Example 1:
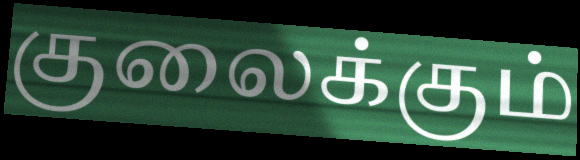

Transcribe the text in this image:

குலைக்கும்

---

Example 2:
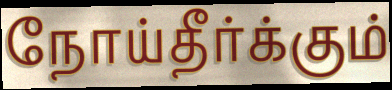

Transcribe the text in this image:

நோய்தீர்க்கும்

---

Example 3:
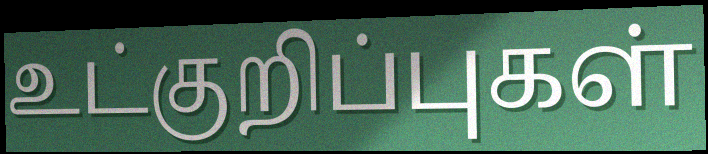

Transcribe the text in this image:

உட்குறிப்புகள்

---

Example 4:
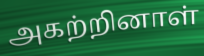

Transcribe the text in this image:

அகற்றினாள்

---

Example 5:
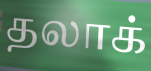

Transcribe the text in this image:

தலாக்